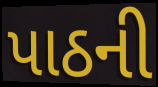
પાઠની